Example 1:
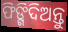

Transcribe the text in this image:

ଫିଙ୍ଗିଦିଅନ୍ତୁ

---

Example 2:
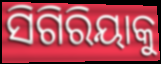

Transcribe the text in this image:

ସିଗିରିୟାକୁ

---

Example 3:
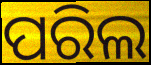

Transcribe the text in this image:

ପରିଲ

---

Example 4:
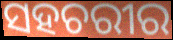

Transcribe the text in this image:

ସହଚରୀର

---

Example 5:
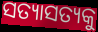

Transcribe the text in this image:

ସତ୍ୟାସତ୍ୟକୁ